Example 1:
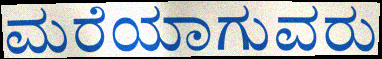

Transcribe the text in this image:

ಮರೆಯಾಗುವರು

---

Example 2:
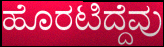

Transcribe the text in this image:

ಹೊರಟಿದ್ದೆವು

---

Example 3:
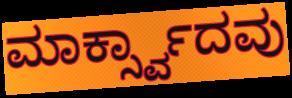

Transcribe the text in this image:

ಮಾರ್ಕ್ಸ್ವಾದವು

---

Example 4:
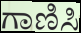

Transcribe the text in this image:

ಗಾಣಿಸಿ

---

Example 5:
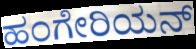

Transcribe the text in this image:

ಹಂಗೇರಿಯನ್